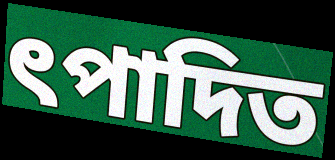
ৎপাদিত